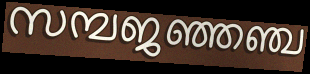
സമ്പജഞ്ഞഞ്ച